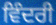
ਵਿੰਦਰੀ